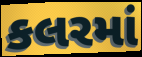
કલરમાં